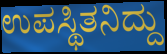
ಉಪಸ್ಥಿತನಿದ್ದು